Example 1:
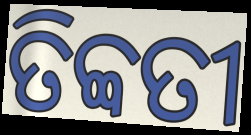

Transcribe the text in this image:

ତିବ୍ବତୀ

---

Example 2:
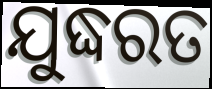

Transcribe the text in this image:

ଯୁଦ୍ଧରତ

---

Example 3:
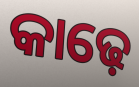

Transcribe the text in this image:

କାଢ଼େ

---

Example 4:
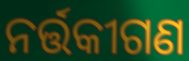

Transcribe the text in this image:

ନର୍ତ୍ତକୀଗଣ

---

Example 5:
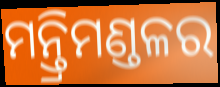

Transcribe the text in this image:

ମନ୍ତ୍ରିମଣ୍ଡଳର